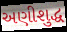
અણીશુદ્ધ